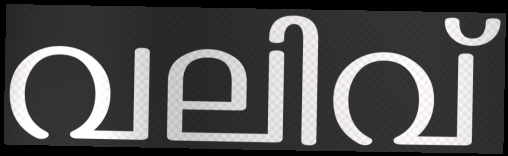
വലിവ്